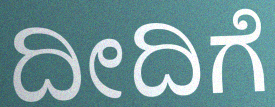
ದೀದಿಗೆ